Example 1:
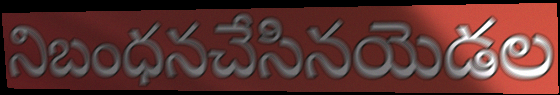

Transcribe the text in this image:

నిబంధనచేసినయెడల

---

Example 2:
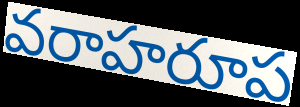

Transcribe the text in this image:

వరాహరూప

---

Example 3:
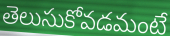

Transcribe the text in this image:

తెలుసుకోవడమంటే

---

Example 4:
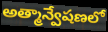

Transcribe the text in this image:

అత్మాన్వేషణలో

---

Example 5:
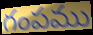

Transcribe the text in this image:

గంపము